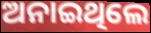
ଅନାଇଥିଲେ